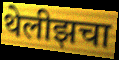
थेलीझचा